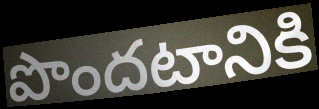
పొందటానికి